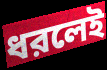
ধরলেই